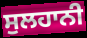
ਸੁਲਹਾਨੀ